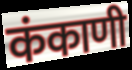
कंकाणी